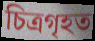
চিত্ৰগৃহত